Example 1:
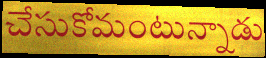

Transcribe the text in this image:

చేసుకోమంటున్నాడు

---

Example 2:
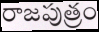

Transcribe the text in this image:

రాజపుత్రం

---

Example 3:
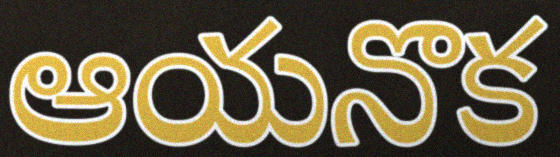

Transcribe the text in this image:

ఆయనొక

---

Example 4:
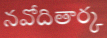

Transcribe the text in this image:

నవోదితార్క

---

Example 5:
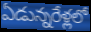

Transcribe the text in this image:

ఏడున్నరేళ్లలో